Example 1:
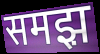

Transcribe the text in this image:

समझ़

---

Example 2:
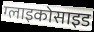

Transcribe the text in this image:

ग्लाइकोसाइड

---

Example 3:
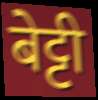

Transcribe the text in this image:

बेट्टी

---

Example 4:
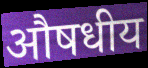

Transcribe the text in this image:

औषधीय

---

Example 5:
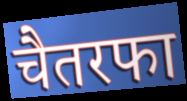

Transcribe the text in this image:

चैतरफा